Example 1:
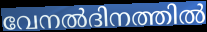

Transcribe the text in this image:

വേനൽദിനത്തിൽ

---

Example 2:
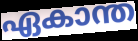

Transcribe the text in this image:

ഏകാന്ത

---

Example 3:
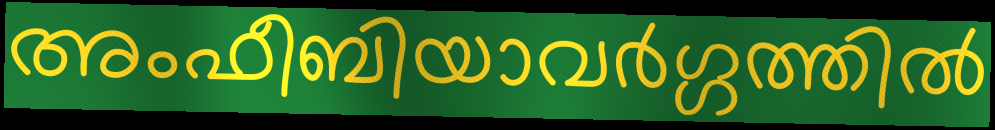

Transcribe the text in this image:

അംഫീബിയാവർഗ്ഗത്തിൽ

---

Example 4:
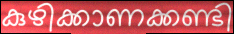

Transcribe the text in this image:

കുഴിക്കാണക്കണ്ടി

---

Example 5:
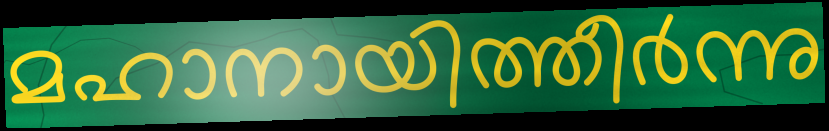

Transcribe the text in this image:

മഹാനായിത്തീർന്നു